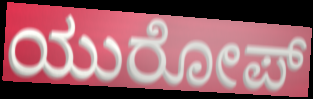
ಯುರೋಪ್